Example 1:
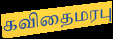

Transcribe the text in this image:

கவிதைமரபு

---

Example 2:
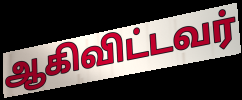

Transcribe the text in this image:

ஆகிவிட்டவர்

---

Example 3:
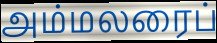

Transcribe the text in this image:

அம்மலரைப்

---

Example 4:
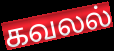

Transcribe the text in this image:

கவலல்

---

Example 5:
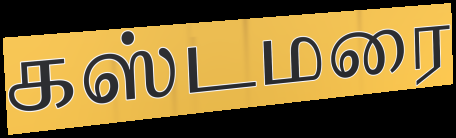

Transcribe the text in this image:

கஸ்டமரை